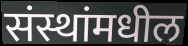
संस्थांमधील